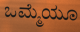
ಒಮ್ಮೆಯೂ